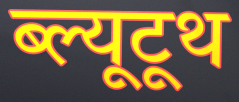
ब्ल्यूटूथ